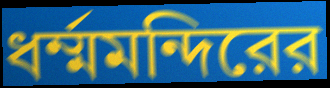
ধর্ম্মমন্দিরের